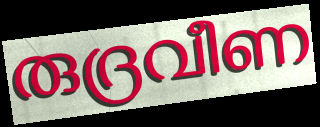
രുദ്രവീണ